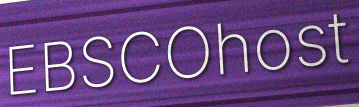
EBSCOhost